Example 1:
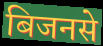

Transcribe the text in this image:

बिजनसे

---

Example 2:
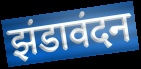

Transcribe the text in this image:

झंडावंदन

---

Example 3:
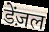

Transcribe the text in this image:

डेंज़ल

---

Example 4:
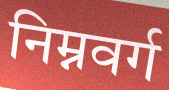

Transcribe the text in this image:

निम्नवर्ग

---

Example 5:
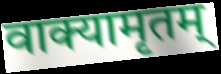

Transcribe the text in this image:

वाक्यामृतम्